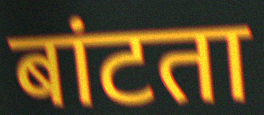
बांटता